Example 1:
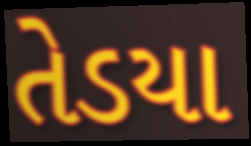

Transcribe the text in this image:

તેડયા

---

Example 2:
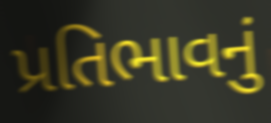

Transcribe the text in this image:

પ્રતિભાવનું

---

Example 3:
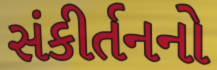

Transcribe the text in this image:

સંકીર્તનનો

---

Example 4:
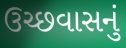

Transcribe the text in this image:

ઉચ્છવાસનું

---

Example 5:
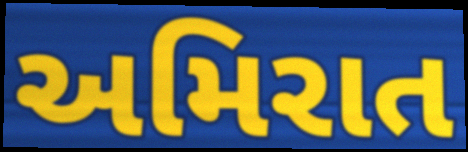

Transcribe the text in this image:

અમિરાત